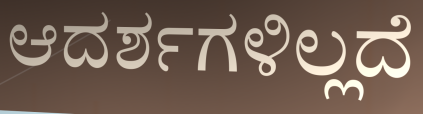
ಆದರ್ಶಗಳಿಲ್ಲದೆ